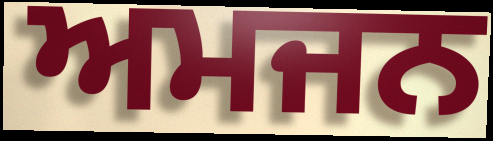
ਅਮਜਨ